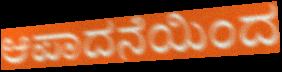
ಆಪಾದನೆಯಿಂದ